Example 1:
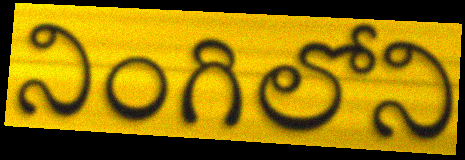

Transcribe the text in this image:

నింగిలోని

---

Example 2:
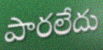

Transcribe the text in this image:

పారలేదు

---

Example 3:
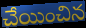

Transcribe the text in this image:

చేయించిన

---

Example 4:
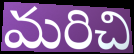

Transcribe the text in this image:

మరిచి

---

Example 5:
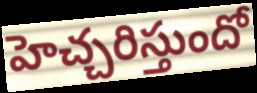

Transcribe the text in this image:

హెచ్చరిస్తుందో